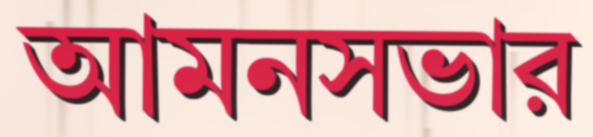
আমনসভার